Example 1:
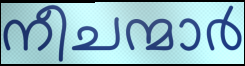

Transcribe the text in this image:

നീചന്മാർ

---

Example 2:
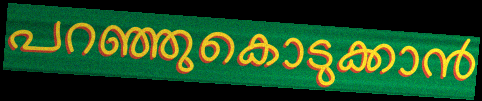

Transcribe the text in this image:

പറഞ്ഞുകൊടുക്കാൻ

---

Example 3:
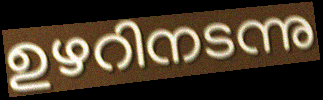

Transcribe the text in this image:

ഉഴറിനടന്നു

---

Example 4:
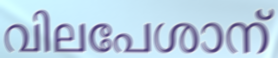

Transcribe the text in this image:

വിലപേശാന്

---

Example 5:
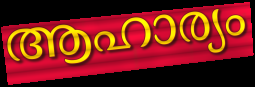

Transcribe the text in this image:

ആഹാര്യം